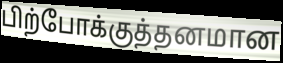
பிற்போக்குத்தனமான